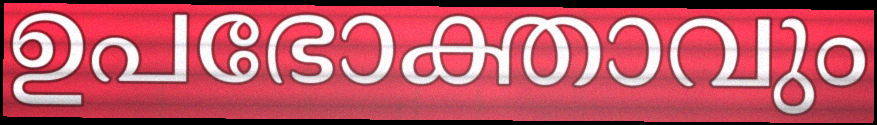
ഉപഭോക്താവും